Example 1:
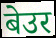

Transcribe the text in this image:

बेउर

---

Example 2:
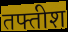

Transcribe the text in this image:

तफ्तीश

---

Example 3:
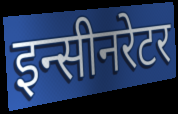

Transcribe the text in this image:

इन्सीनरेटर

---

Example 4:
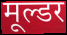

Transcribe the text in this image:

मूल्डर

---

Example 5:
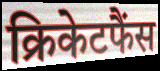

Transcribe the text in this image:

क्रिकेटफैंस